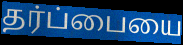
தர்ப்பையை